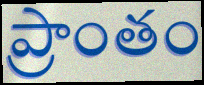
ప్రాంతం